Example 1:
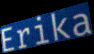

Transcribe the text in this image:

Erika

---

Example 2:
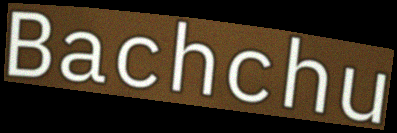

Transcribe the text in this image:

Bachchu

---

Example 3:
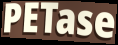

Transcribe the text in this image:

PETase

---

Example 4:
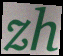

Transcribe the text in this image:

zh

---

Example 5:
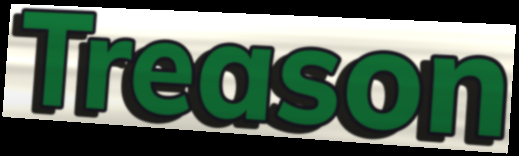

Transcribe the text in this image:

Treason